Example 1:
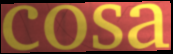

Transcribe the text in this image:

cosa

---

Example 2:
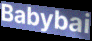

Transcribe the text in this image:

Babybai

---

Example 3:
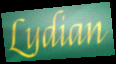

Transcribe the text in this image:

Lydian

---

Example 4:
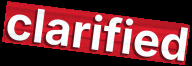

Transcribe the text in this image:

clarified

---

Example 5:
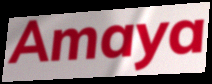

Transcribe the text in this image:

Amaya